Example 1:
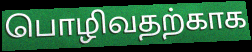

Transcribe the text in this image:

பொழிவதற்காக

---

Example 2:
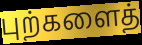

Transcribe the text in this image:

புற்களைத்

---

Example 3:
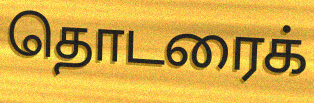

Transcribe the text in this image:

தொடரைக்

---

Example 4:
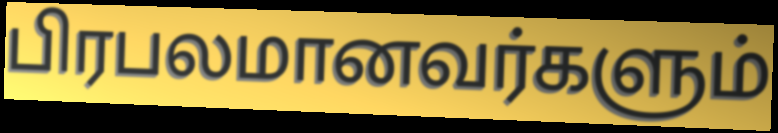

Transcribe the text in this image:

பிரபலமானவர்களும்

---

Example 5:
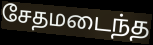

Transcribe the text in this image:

சேதமடைந்த